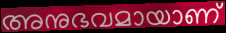
അനുഭവമായാണ്